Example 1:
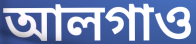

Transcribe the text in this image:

আলগাও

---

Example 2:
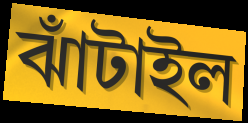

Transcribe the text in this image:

ঝাঁটাইল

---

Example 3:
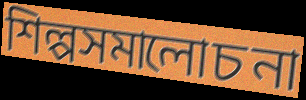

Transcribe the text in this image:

শিল্পসমালোচনা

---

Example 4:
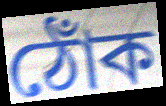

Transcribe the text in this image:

ঠোঁক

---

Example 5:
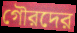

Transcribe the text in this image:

গৌরদের